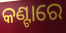
କଣ୍ଟାରେ